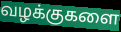
வழக்குகளை